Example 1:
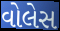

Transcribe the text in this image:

વોલેસ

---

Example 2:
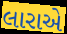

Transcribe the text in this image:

લારાએ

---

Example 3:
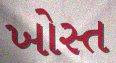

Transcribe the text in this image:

ખોસ્ત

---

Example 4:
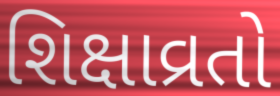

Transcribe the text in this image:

શિક્ષાવ્રતો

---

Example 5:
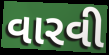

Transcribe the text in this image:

વારવી